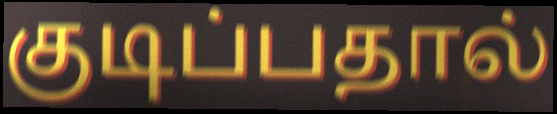
குடிப்பதால்